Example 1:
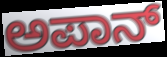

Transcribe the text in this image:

ಅಪಾನ್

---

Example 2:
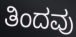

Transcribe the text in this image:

ತಿಂದವು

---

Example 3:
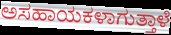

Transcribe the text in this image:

ಅಸಹಾಯಕಳಾಗುತ್ತಾಳೆ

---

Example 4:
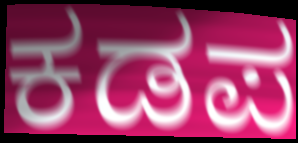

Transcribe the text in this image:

ಕಡಪ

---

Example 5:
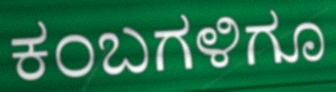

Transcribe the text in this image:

ಕಂಬಗಳಿಗೂ